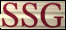
SSG